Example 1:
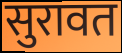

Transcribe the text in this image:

सुरावत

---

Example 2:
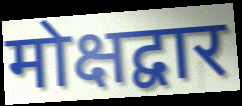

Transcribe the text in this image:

मोक्षद्वार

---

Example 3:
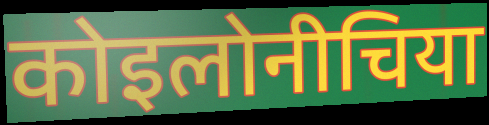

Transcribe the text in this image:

कोइलोनीचिया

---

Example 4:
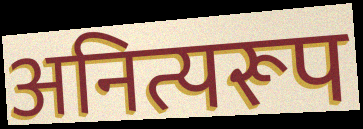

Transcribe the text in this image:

अनित्यरूप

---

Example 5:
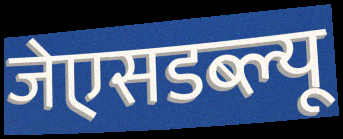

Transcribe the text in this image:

जेएसडब्ल्यू